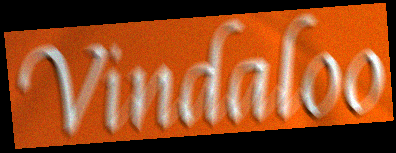
Vindaloo